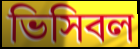
ভিসিবল